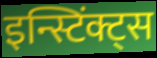
इन्स्टिंक्ट्स